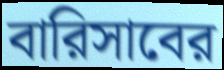
বারিসাবের